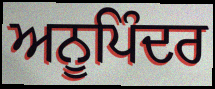
ਅਨੂਪਿੰਦਰ